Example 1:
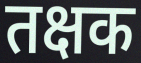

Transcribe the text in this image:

तक्षक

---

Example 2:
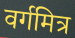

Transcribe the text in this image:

वर्गमित्र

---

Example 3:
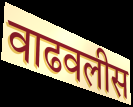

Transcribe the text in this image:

वाढवलीस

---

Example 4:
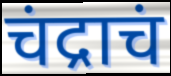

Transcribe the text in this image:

चंद्राचं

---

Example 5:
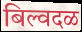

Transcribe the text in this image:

बिल्वदळ